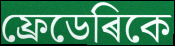
ফ্ৰেডেৰিকে